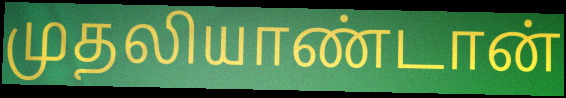
முதலியாண்டான்